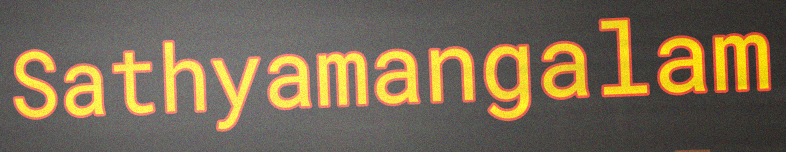
Sathyamangalam